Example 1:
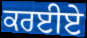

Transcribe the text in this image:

ਕਰਈਏ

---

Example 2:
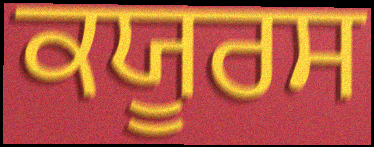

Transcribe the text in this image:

ਕਯੂਰਸ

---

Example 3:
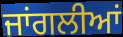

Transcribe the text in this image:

ਜਾਂਗਲੀਆਂ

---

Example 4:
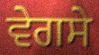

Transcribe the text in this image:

ਵੇਗਸੇ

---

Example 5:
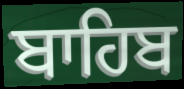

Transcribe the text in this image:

ਬਾਹਿਬ